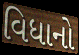
વિધાનો